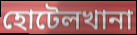
হোটেলখানা